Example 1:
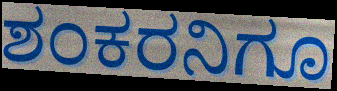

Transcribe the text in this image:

ಶಂಕರನಿಗೂ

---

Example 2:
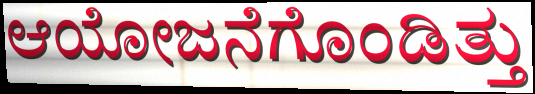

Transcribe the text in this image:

ಆಯೋಜನೆಗೊಂಡಿತ್ತು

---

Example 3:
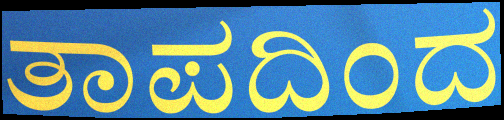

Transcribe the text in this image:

ತಾಪದಿಂದ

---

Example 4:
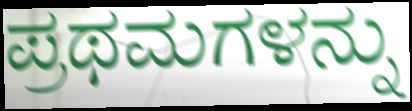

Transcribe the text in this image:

ಪ್ರಥಮಗಳನ್ನು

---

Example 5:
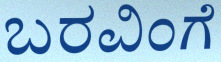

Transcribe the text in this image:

ಬರವಿಂಗೆ